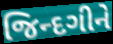
જિન્દગીને